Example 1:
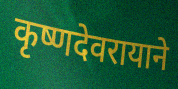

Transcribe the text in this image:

कृष्णदेवरायाने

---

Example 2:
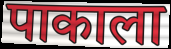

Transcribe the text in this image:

पाकाला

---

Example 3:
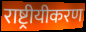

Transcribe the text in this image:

राष्ट्रीयीकरण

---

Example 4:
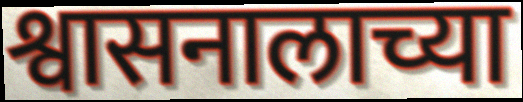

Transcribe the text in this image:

श्वासनालाच्या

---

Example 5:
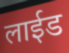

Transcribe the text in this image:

लाईड